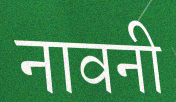
नावनी